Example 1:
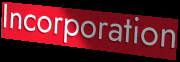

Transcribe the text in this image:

Incorporation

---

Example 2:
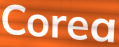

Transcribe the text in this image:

Corea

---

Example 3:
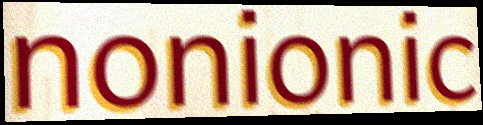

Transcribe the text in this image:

nonionic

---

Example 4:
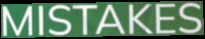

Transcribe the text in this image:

MISTAKES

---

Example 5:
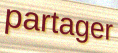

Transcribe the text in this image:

partager